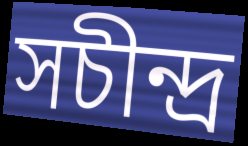
সচীন্দ্র